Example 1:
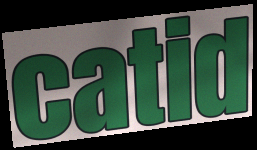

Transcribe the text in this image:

catid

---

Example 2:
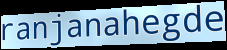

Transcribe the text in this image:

ranjanahegde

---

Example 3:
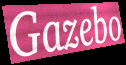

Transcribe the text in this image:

Gazebo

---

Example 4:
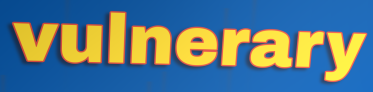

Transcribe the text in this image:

vulnerary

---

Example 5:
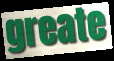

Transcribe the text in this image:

greate